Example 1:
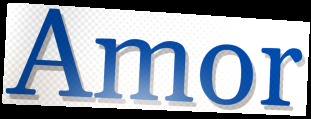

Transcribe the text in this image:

Amor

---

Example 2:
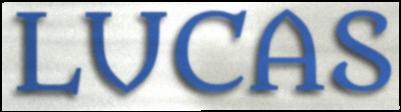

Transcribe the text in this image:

LUCAS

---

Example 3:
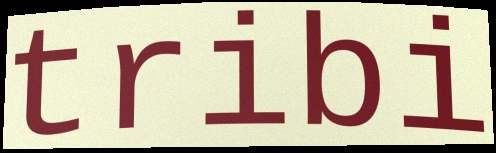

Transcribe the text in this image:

tribi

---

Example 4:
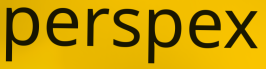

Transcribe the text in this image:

perspex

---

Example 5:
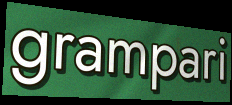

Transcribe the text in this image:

grampari